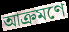
আক্রমণে